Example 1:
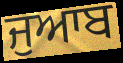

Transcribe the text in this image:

ਜੁਆਬ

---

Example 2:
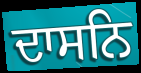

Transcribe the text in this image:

ਦਾਸਨਿ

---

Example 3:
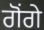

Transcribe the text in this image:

ਗੋਂਗੇ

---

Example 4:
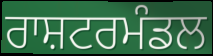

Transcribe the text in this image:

ਰਾਸ਼ਟਰਮੰਡਲ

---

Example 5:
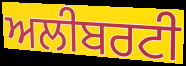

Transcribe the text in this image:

ਅਲੀਬਰਟੀ